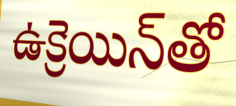
ఉక్రెయిన్‌తో